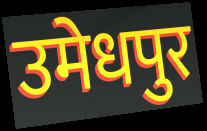
उमेधपुर